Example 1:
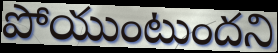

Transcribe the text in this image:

పోయుంటుందని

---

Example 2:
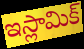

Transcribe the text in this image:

ఇస్లామిక్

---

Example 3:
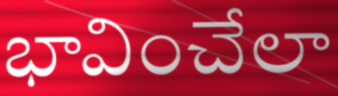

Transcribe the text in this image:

భావించేలా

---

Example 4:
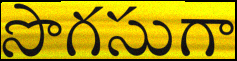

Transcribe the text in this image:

సొగసుగా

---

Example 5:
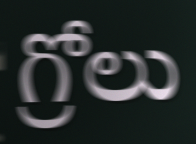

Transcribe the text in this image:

గ్రోలు